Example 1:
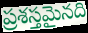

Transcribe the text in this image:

ప్రశస్తమైనది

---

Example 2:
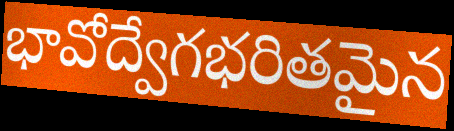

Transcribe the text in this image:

భావోద్వేగభరితమైన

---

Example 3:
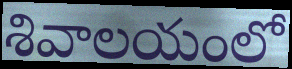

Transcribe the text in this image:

శివాలయంలో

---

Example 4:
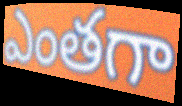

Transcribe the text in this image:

ఎంతగా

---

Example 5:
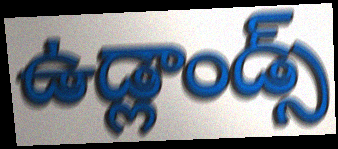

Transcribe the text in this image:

ఉడ్లాండ్స్